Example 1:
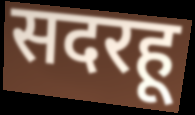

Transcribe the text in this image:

सदरहू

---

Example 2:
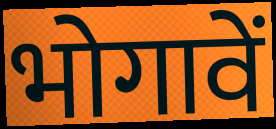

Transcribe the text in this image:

भोगावें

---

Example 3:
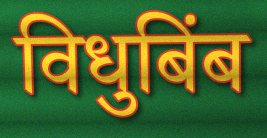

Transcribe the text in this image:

विधुबिंब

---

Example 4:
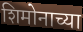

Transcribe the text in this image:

शिमोनाच्या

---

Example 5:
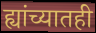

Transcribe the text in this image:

ह्यांच्यातही